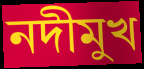
নদীমুখ